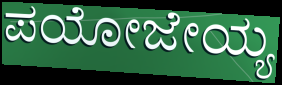
ಪಯೋಜೇಯ್ಯ